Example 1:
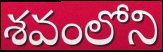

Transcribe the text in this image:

శవంలోని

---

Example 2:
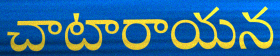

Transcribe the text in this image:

చాటారాయన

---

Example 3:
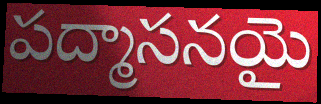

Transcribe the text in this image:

పద్మాసనయై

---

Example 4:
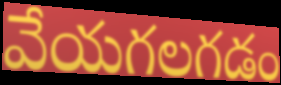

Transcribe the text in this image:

వేయగలగడం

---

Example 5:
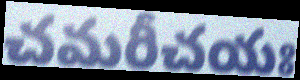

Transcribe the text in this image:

చమరీచయః